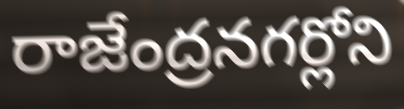
రాజేంద్రనగర్లోని